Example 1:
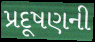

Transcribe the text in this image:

પ્રદૂષણની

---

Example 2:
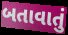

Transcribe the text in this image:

બતાવાતું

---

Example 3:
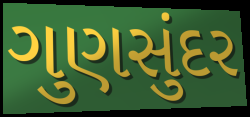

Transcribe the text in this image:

ગુણસુંદર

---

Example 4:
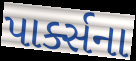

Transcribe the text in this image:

પાર્ક્સના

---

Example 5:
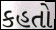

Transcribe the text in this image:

કહતો